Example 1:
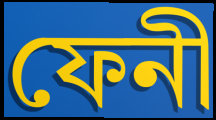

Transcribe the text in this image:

ফেনী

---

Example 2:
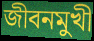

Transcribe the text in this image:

জীবনমুখী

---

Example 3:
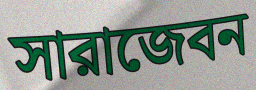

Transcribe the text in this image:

সারাজেবন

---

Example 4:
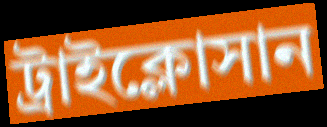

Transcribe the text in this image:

ট্রাইক্লোসান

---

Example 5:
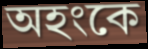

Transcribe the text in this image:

অহংকে